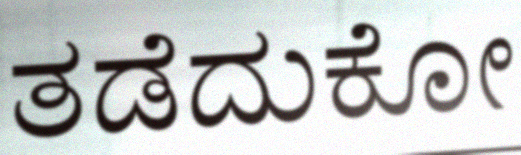
ತಡೆದುಕೋ